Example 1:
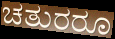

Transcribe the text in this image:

ಚತುರರೂ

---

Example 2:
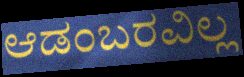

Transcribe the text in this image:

ಆಡಂಬರವಿಲ್ಲ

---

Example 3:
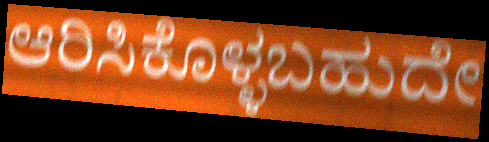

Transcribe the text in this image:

ಆರಿಸಿಕೊಳ್ಳಬಹುದೇ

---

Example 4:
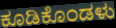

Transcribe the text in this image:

ಕೂಡಿಕೊಂಡಳು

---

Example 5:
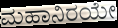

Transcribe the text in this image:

ಮಹಾನಿರಯೇ